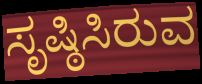
ಸೃಷ್ಠಿಸಿರುವ